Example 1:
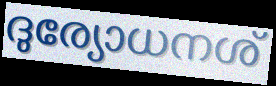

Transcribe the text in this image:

ദുര്യോധനശ്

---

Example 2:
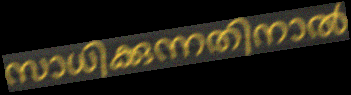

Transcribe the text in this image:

സാധിക്കുന്നതിനാൽ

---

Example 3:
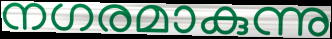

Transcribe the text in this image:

നഗരമാകുന്നു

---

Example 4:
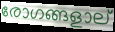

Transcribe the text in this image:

രോഗങ്ങളാല്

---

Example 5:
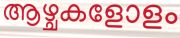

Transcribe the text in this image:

ആഴ്ചകളോളം